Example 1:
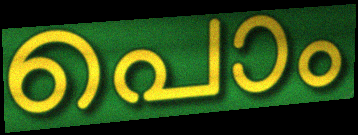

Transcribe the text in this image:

പൊം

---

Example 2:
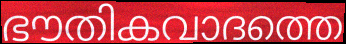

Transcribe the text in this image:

ഭൗതികവാദത്തെ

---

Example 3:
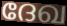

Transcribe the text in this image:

ദേഖ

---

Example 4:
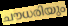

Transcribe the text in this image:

ചൗധരിയും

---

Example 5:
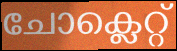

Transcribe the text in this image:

ചോക്ലെറ്റ്